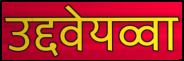
उद्दवेयव्वा